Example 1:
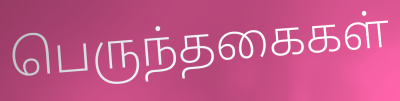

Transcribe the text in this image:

பெருந்தகைகள்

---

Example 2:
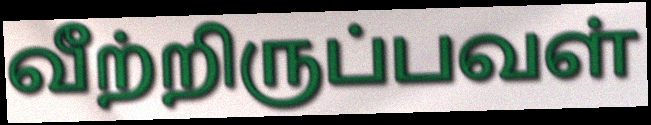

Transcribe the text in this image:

வீற்றிருப்பவள்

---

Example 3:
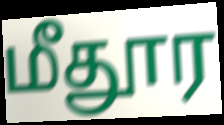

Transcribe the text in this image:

மீதூர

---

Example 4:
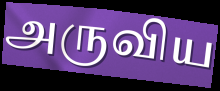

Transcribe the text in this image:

அருவிய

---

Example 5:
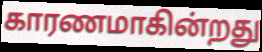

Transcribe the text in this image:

காரணமாகின்றது